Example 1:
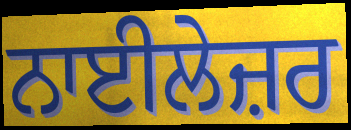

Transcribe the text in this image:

ਨਾਈਲੇਜ਼ਰ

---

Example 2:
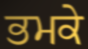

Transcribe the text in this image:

ਭਮਕੇ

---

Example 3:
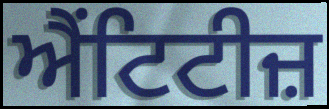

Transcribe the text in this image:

ਐਂਟਿਟੀਜ਼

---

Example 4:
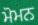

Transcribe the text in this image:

ਮੋਮਨ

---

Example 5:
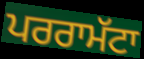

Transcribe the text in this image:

ਪਰਰਾਮੱਟਾ